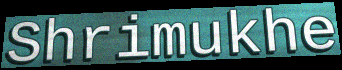
Shrimukhe